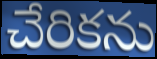
చేరికను